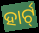
ହାର୍ଟ୍